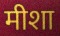
मीशा